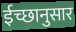
ईच्छानुसार